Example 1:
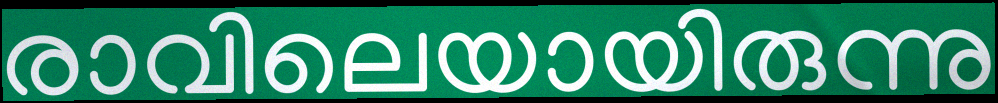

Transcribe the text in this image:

രാവിലെയായിരുന്നു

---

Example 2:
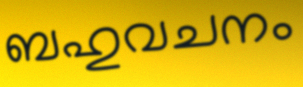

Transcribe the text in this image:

ബഹുവചനം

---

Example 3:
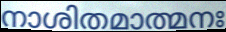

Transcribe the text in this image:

നാശിതമാത്മനഃ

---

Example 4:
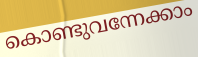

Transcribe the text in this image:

കൊണ്ടുവന്നേക്കാം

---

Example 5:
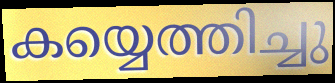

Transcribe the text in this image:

കയ്യെത്തിച്ചു